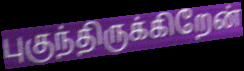
புகுந்திருக்கிறேன்